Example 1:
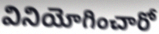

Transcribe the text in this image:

వినియోగించారో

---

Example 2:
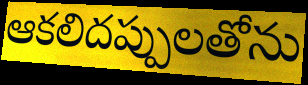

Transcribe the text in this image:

ఆకలిదప్పులతోను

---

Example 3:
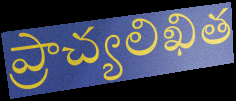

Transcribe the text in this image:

ప్రాచ్యలిఖిత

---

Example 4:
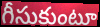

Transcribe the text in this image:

గీసుకుంటూ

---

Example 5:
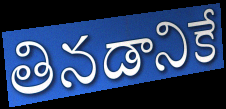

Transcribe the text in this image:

తినడానికే